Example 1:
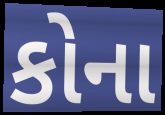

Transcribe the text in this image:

કોના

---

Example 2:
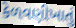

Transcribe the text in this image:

કેળવણીખાતું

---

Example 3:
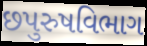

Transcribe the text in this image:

છપુરુષવિભાગ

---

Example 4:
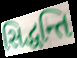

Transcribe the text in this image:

સિદ્ધન્તિ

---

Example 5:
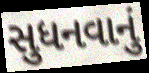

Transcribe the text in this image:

સુધનવાનું